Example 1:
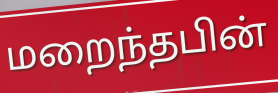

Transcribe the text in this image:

மறைந்தபின்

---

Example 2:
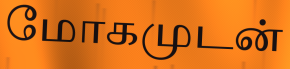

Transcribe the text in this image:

மோகமுடன்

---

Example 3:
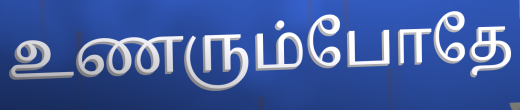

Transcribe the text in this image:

உணரும்போதே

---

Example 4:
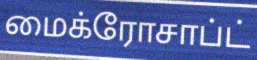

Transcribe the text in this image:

மைக்ரோசாப்ட்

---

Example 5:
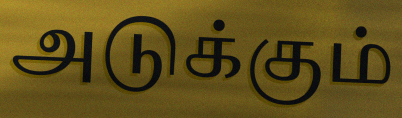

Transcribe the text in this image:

அடுக்கும்